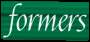
formers